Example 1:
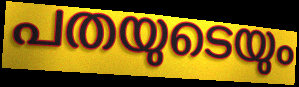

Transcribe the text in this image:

പതയുടെയും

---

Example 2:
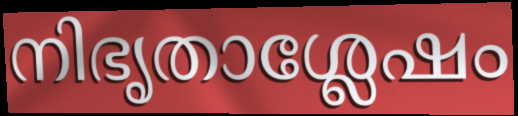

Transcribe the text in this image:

നിഭൃതാശ്ലേഷം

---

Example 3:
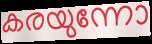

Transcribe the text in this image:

കരയുന്നോ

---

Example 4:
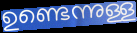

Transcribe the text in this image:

ഉണ്ടെന്നുള്ള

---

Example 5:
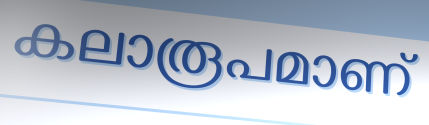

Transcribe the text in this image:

കലാരൂപമാണ്